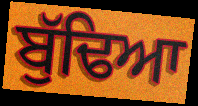
ਬੁੱਢਿਆ